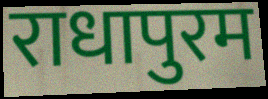
राधापुरम